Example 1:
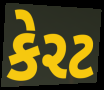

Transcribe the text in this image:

કેરટ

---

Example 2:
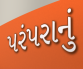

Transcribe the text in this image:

પરંપરાનું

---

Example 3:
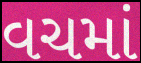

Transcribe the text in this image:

વચમાં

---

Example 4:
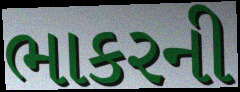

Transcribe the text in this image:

ભાકરની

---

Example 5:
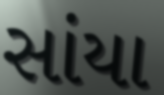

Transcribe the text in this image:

સાંયા